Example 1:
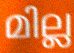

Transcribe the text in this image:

മില്ല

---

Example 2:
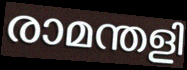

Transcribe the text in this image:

രാമന്തളി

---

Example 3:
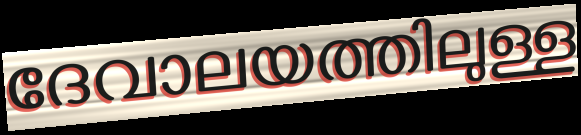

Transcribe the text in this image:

ദേവാലയത്തിലുള്ള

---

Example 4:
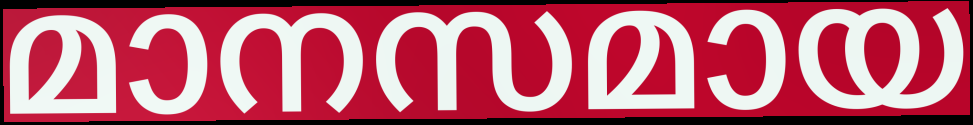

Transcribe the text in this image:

മാനസമായ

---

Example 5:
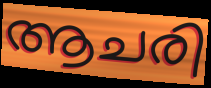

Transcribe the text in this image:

ആചരി